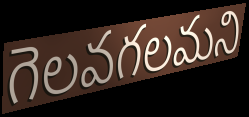
గెలవగలమని